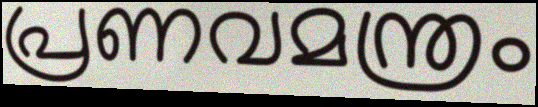
പ്രണവമന്ത്രം